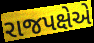
રાજપક્ષેએ